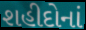
શહીદોનાં